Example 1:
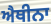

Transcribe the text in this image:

ਐਥੀਨਾ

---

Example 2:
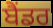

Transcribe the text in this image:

ਬੈਂਡਰ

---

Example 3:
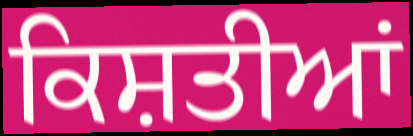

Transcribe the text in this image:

ਕਿਸ਼ਤੀਆਂ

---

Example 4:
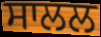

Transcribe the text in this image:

ਸਾਲਲ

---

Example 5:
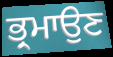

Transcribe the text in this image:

ਭ੍ਰਮਾਉਣ